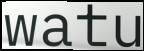
watu